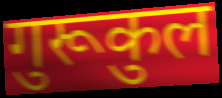
गुरूकुल